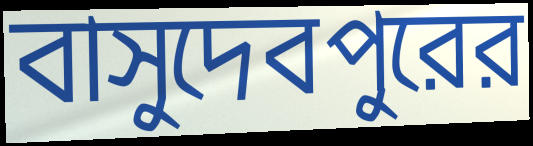
বাসুদেবপুরের